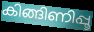
കിങ്ങിണിപ്പൂ